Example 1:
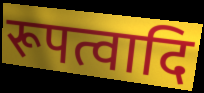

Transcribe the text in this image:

रूपत्वादि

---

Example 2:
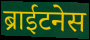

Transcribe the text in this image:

ब्राईटनेस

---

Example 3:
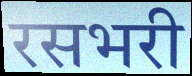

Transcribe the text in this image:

रसभरी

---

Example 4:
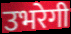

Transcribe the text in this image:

उभरेगी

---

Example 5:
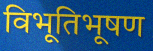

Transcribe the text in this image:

विभूतिभूषण